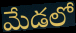
మేడలో